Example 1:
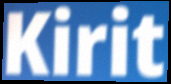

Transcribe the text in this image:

Kirit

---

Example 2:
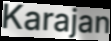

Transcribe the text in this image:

Karajan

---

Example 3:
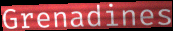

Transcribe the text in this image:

Grenadines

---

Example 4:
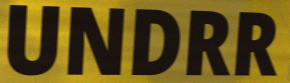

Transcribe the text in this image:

UNDRR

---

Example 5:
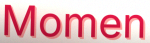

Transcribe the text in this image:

Momen